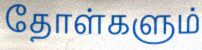
தோள்களும்